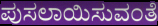
ಪುಸಲಾಯಿಸುವಂತೆ